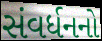
સંવર્ધનનો